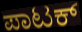
ಪಾಟಕ್